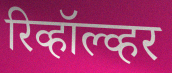
रिव्हॉल्व्हर